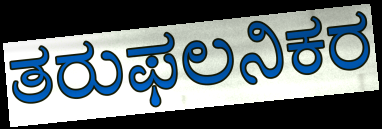
ತರುಫಲನಿಕರ